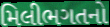
મિલીભગતનો